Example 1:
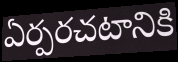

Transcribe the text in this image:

ఏర్పరచటానికి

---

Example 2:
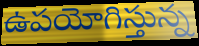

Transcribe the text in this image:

ఉపయోగిస్తున్న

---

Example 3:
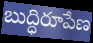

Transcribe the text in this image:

బుద్ధిరూపేణ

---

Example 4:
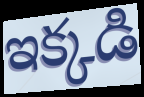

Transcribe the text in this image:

ఇక్కడి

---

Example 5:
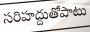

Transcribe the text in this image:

సరిహద్దుతోపాటు